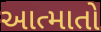
આત્માતો